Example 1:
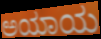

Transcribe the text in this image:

ಅಯಾಯ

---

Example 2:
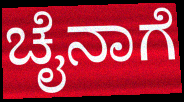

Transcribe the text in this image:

ಚೈನಾಗೆ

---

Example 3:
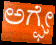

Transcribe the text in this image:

ಅಗ್ಘೇ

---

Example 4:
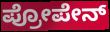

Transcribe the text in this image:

ಪ್ರೋಪೇನ್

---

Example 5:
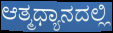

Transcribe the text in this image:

ಆತ್ಮಧ್ಯಾನದಲ್ಲಿ